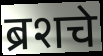
ब्रशचे